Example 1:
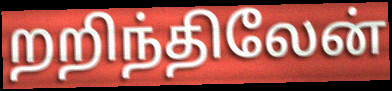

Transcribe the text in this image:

றறிந்திலேன்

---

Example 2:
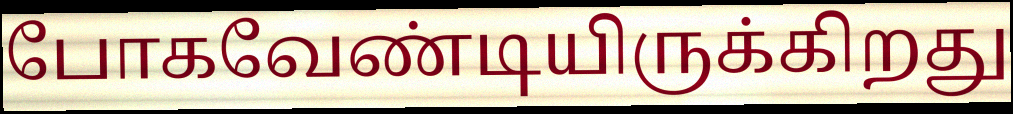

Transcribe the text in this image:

போகவேண்டியிருக்கிறது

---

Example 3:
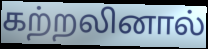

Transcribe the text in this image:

கற்றலினால்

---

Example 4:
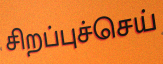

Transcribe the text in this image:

சிறப்புச்செய்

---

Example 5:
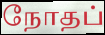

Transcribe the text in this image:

நோதப்